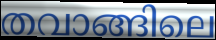
തവാങ്ങിലെ